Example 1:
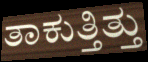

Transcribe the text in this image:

ತಾಕುತ್ತಿತ್ತು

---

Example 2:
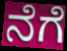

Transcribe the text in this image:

ನೆಗೆ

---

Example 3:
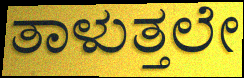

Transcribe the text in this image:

ತಾಳುತ್ತಲೇ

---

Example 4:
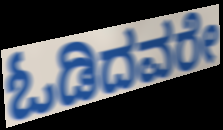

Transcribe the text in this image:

ಓಡಿದವರೇ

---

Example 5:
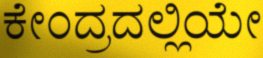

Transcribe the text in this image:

ಕೇಂದ್ರದಲ್ಲಿಯೇ